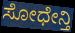
ಸೋಧೇನ್ತಿ